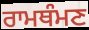
ਰਾਮਥੰਮਣ